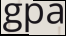
gpa